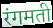
रंगमती